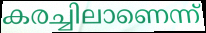
കരച്ചിലാണെന്ന്